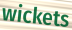
wickets